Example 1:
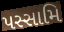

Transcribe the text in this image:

પસ્સામિ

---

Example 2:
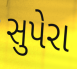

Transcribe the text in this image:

સુપેરા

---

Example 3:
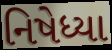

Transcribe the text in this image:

નિષેધ્યા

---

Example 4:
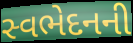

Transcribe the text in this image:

સ્વભેદનની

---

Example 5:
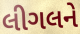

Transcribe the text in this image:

લીગલને